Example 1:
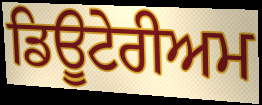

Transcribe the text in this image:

ਡਿਊਟੇਰੀਅਮ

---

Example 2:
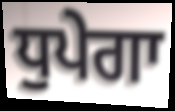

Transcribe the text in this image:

ਧੁਪੇਗਾ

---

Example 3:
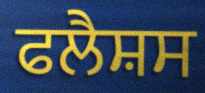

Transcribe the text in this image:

ਫਲੈਸ਼ਸ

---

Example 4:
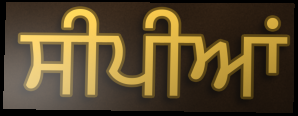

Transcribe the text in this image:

ਸੀਪੀਆਂ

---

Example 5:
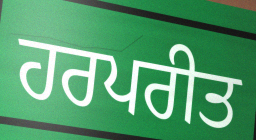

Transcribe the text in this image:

ਹਰਪਰੀਤ